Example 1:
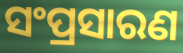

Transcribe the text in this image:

ସଂପ୍ରସାରଣ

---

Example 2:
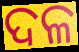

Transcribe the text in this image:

ଦଳ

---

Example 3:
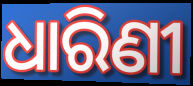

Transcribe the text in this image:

ଧାରିଣୀ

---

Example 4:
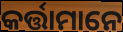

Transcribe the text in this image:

କର୍ତ୍ତାମାନେ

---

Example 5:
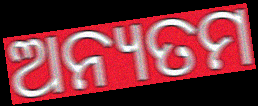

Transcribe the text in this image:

ଅନ୍ୟତମ